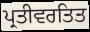
ਪ੍ਰਤੀਵਰਤਿਤ